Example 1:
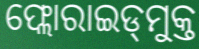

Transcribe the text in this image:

ଫ୍ଲୋରାଇଡ୍‌ମୁକ୍ତ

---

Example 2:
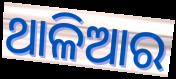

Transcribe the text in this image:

ଥାଳିଆର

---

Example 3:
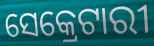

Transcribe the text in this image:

ସେକ୍ରେଟାରୀ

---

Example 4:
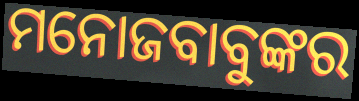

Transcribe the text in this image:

ମନୋଜବାବୁଙ୍କର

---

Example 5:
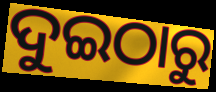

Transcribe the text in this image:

ଦୁଇଠାରୁ